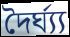
দৈৰ্ঘ্য্য